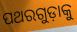
ପଥରଗୁଡ଼ାକୁ